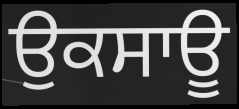
ਉਕਸਾਊ